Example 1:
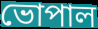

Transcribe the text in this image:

ভোপাল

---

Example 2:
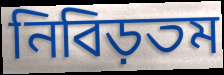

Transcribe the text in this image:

নিবিড়তম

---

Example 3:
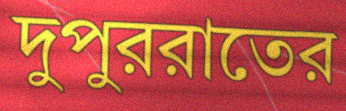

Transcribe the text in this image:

দুপুররাতের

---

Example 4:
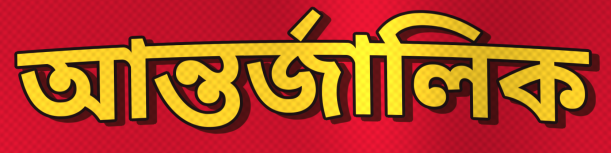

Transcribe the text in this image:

আন্তর্জালিক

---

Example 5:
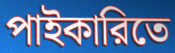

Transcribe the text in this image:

পাইকারিতে